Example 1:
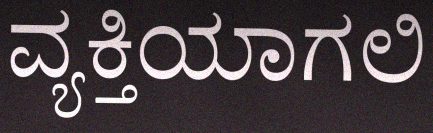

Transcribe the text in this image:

ವ್ಯಕ್ತಿಯಾಗಲಿ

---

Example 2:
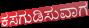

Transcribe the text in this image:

ಕಸಗುಡಿಸುವಾಗ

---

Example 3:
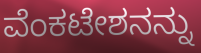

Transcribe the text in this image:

ವೆಂಕಟೇಶನನ್ನು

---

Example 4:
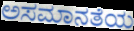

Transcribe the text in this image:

ಅಸಮಾನತೆಯ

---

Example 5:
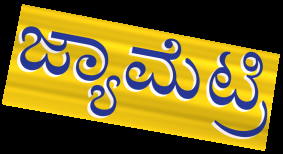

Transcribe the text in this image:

ಜ್ಯಾಮೆಟ್ರಿ